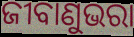
ଜୀବାଣୁଭରା